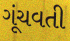
ગૂંચવતી